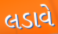
લડાવે